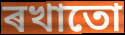
ৰখাতো